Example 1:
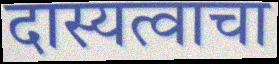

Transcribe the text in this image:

दास्यत्वाचा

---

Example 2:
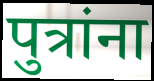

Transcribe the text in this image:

पुत्रांना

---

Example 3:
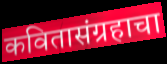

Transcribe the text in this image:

कवितासंग्रहाचा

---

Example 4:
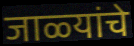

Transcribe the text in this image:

जाळ्यांचे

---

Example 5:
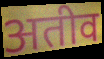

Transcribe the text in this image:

अतीव